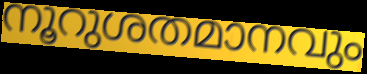
നൂറുശതമാനവും